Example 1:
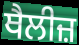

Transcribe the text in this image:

ਥੈਲੀਜ਼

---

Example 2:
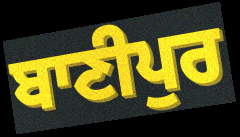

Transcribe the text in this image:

ਬਾਣੀਪੁਰ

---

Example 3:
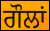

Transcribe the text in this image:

ਗੌਲਾਂ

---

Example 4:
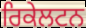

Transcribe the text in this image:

ਰਿਕੇਲਟਨ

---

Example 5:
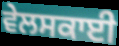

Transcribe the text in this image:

ਵੇਲਸਕਾਈ